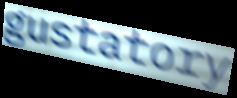
gustatory